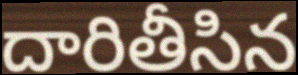
దారితీసిన